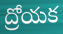
ద్రోయక